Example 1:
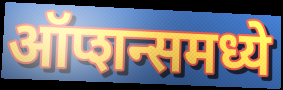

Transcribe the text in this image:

ऑप्शन्समध्ये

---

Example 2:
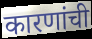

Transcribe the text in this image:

कारणांची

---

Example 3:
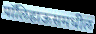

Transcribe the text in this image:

पॉलिहाऊसमधील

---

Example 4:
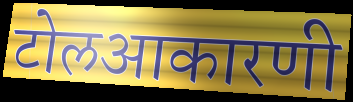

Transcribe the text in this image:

टोलआकारणी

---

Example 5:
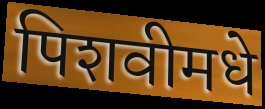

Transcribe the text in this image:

पिशवीमधे